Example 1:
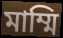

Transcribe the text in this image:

মাম্মি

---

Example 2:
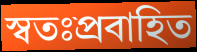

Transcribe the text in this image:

স্বতঃপ্রবাহিত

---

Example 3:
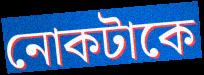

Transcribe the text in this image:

নোকটাকে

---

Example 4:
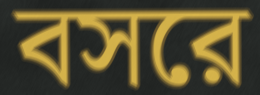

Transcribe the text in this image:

বসরে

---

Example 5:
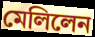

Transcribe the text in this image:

মেলিলেন